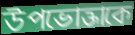
উপভোক্তাকে